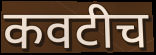
कवटीच